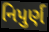
નિપુર્ણ